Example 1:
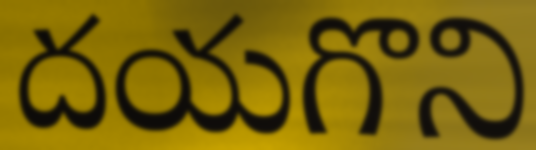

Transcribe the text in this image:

దయగొని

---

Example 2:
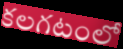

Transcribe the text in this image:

కలగటంలో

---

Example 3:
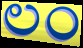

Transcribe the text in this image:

లం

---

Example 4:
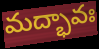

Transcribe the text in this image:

మద్భావః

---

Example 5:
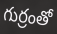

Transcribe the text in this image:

గుర్రంతో